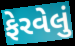
ફેરવેલું